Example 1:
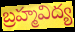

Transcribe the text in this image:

బ్రహ్మవిద్య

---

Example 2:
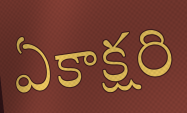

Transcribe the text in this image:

ఏకాక్షరి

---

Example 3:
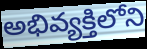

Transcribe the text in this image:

అభివ్యక్తిలోని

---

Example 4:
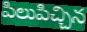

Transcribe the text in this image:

పిలుపిచ్చిన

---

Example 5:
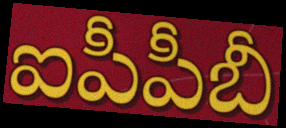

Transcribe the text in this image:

ఐపీపీబీ